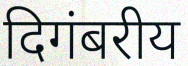
दिगंबरीय